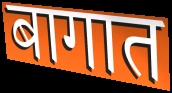
बागात